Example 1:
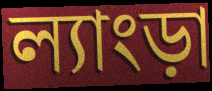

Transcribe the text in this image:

ল্যাংড়া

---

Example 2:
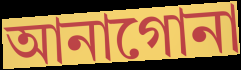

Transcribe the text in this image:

আনাগোনা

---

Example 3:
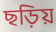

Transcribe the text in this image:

ছড়িয়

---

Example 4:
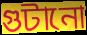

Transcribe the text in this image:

গুটানো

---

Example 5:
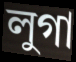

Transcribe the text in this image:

লুগা